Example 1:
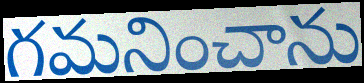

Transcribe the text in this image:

గమనించాను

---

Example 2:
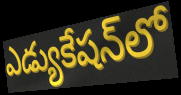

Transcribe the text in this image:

ఎడ్యుకేషన్‌లో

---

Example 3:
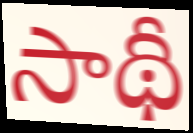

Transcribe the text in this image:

సాథీ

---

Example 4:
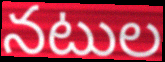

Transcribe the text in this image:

నటుల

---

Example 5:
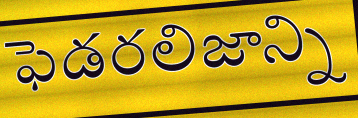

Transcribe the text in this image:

ఫెడరలిజాన్ని